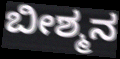
ಬೀಶ್ಮನ